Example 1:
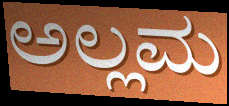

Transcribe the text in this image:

ಅಲ್ಲಮ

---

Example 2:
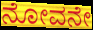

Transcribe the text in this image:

ನೋವನೇ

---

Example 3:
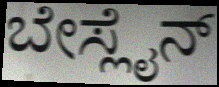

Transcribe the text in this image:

ಬೇಸ್ಲೈನ್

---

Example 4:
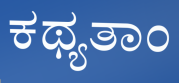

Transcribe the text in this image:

ಕಥ್ಯತಾಂ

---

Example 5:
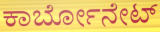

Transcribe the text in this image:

ಕಾರ್ಬೋನೇಟ್